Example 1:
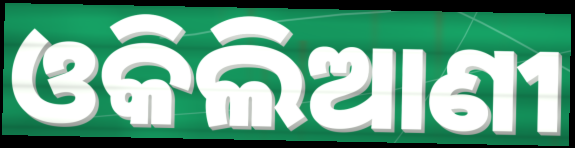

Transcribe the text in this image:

ଓକିଲିଆଣୀ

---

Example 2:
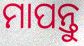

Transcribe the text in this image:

ମାପନ୍ତୁ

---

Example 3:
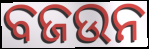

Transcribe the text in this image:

ବଜଉନ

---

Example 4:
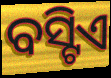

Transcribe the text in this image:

ବସ୍ଟିଏ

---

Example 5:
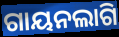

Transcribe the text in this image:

ଗାୟନଲାଗି